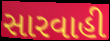
સારવાહી